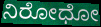
ನಿರೋಧೋ